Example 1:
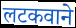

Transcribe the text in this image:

लटकवाने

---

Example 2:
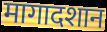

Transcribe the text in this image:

मागादशान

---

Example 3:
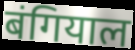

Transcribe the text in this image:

बंगियाल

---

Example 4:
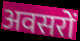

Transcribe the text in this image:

अवसरों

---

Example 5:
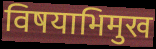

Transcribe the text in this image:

विषयाभिमुख